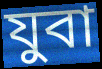
যুবা